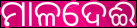
ମାଳଦେଈ